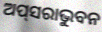
ଅପ୍‍ସରାଭୁବନ